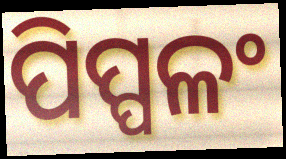
ପିପ୍ପଳଂ